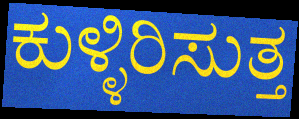
ಕುಳ್ಳಿರಿಸುತ್ತ